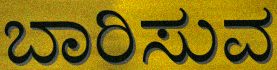
ಬಾರಿಸುವ